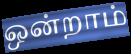
ஒன்றாம்